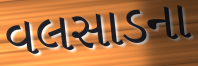
વલસાડના